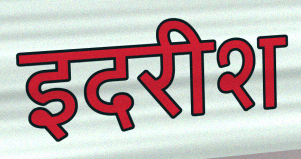
इदरीश